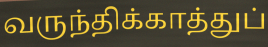
வருந்திக்காத்துப்